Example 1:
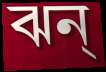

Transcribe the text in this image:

ঝন্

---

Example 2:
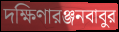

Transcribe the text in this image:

দক্ষিণারঞ্জনবাবুর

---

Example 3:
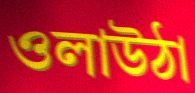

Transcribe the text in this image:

ওলাউঠা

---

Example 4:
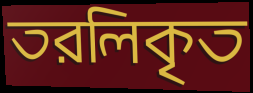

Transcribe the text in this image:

তরলিকৃত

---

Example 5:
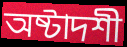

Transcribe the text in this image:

অষ্টাদশী